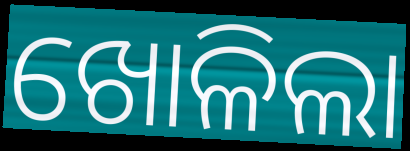
ଖୋଳିଲା